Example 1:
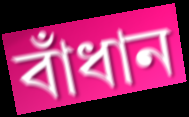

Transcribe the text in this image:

বাঁধান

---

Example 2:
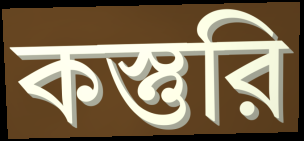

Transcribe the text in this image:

কস্তুরি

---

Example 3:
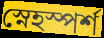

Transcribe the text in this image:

স্নেহস্পর্শ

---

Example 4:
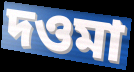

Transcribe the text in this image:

দওমা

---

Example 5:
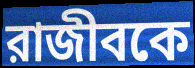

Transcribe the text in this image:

রাজীবকে